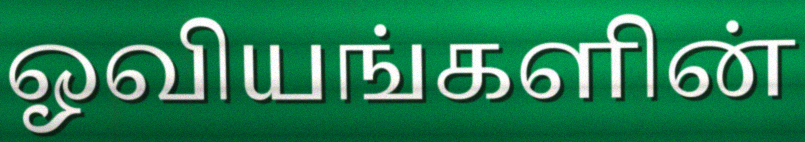
ஓவியங்களின்